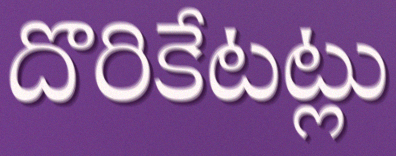
దొరికేటట్లు